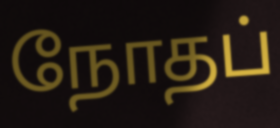
நோதப்